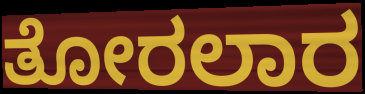
ತೋರಲಾರ